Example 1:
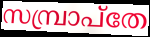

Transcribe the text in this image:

സമ്പ്രാപ്തേ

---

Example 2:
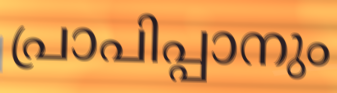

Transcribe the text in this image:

പ്രാപിപ്പാനും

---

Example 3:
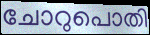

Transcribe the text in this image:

ചോറുപൊതി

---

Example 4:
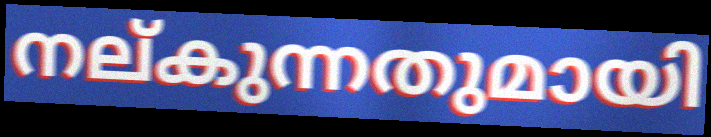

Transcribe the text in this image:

നല്കുന്നതുമായി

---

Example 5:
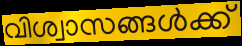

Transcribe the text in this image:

വിശ്വാസങ്ങൾക്ക്